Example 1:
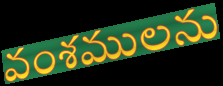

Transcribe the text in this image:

వంశములను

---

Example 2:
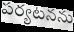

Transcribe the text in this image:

పర్యటనను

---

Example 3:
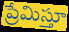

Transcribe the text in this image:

ప్రేమిస్తూ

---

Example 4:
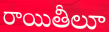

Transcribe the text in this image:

రాయితీలూ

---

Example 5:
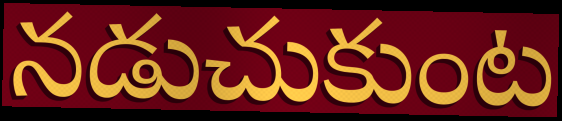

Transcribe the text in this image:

నడుచుకుంట